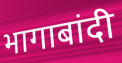
भागाबांदी